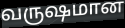
வருஷமான